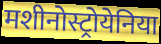
मशीनोस्ट्रोयेनिया